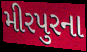
મીરપુરના